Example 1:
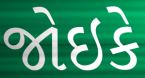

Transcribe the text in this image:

જોઇકે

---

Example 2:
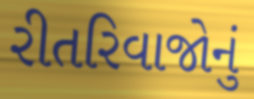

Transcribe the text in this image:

રીતરિવાજોનું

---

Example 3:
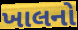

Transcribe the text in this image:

ખાલનો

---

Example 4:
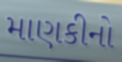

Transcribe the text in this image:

માણકીનો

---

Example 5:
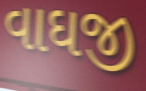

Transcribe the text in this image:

વાઘજી